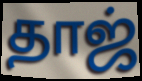
தாஜ்